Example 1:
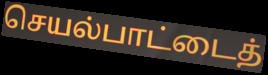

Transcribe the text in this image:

செயல்பாட்டைத்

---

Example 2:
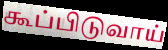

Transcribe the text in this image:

கூப்பிடுவாய்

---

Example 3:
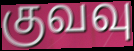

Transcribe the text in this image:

குவவு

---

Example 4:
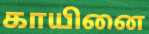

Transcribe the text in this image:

காயினை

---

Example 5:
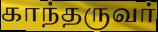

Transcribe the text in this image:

காந்தருவர்